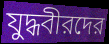
যুদ্ধবীরদের